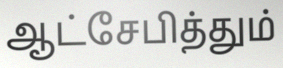
ஆட்சேபித்தும்